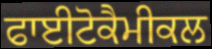
ਫਾਈਟੋਕੈਮੀਕਲ